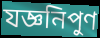
যজ্ঞনিপুণ